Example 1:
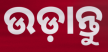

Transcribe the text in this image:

ଉଡ଼ାନ୍ତୁ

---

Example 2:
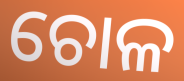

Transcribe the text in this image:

ଚୋଳ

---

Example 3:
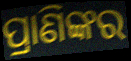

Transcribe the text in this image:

ପ୍ରାଣିଙ୍କର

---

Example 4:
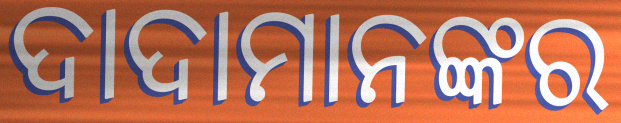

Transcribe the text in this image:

ଦାଦାମାନଙ୍କର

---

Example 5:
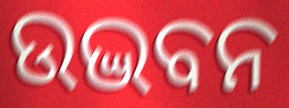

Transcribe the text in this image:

ଉଦ୍ଭବନ